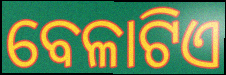
ବେଳାଟିଏ